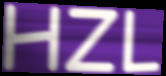
HZL